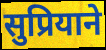
सुप्रियाने